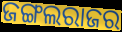
ଜଙ୍ଗଲରାଜର